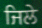
ਜਿਲੇ